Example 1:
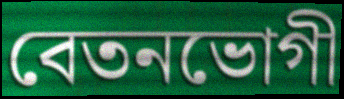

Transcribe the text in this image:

বেতনভোগী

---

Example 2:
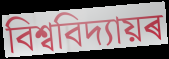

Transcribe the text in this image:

বিশ্ববিদ্যায়ৰ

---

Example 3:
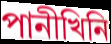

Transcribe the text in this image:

পানীখিনি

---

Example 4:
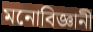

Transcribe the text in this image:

মনোবিজ্ঞানী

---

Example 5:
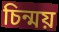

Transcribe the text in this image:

চিন্ময়